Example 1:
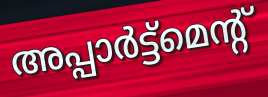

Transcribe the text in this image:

അപ്പാർട്ട്മെന്റ്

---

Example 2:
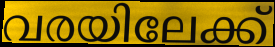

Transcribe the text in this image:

വരയിലേക്ക്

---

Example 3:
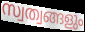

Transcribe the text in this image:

സ്വത്വങ്ങളും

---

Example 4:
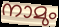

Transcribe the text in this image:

നാമും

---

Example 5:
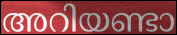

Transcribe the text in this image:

അറിയണ്ടാ